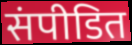
संपीडित